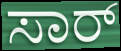
ಸಾರ್